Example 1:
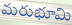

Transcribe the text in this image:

మరుభూమి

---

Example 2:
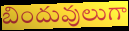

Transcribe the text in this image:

బిందువులుగా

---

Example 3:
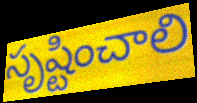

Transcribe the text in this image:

సృష్టించాలి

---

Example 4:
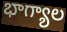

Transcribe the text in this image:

భాగ్యాల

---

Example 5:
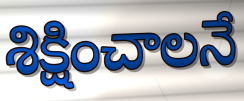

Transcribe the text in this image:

శిక్షించాలనే